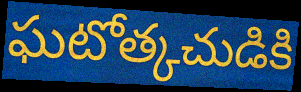
ఘటోత్కచుడికి